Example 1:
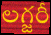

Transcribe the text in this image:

లగ్జరీ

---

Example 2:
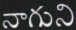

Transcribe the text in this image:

నాగుని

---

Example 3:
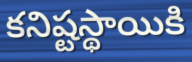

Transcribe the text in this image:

కనిష్టస్థాయికి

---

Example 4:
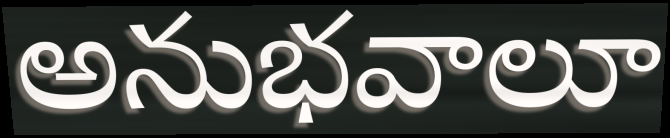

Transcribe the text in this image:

అనుభవాలూ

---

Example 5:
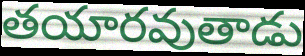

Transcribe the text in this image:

తయారవుతాడు